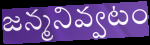
జన్మనివ్వటం